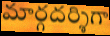
మార్గదర్శిగా